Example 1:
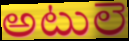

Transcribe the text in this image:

అటులె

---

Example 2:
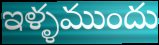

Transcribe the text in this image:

ఇళ్ళముందు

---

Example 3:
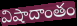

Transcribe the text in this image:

విషాదాంతం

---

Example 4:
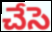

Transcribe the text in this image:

చేసె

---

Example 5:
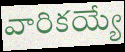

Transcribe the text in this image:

వారికయ్యే